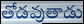
తోడవుతాడు